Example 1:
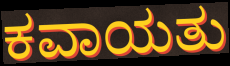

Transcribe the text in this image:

ಕವಾಯತು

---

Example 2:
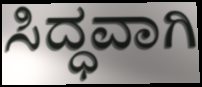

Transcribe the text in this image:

ಸಿದ್ಧವಾಗಿ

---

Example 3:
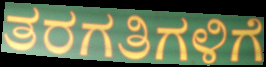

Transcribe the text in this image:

ತರಗತಿಗಳಿಗೆ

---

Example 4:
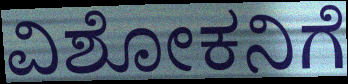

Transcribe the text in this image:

ವಿಶೋಕನಿಗೆ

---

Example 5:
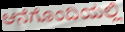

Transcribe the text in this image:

ಆನೆಗೊಂದಿಯಲ್ಲಿ